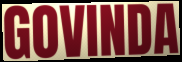
GOVINDA